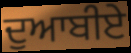
ਦੁਆਬੀਏ